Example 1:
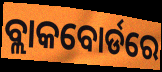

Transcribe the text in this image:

ବ୍ଲାକବୋର୍ଡରେ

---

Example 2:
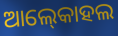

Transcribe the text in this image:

ଆଲ୍‍କୋହଲ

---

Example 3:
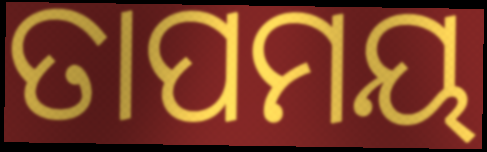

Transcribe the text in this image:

ତାପମୟ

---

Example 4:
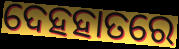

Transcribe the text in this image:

ଦେହହାତରେ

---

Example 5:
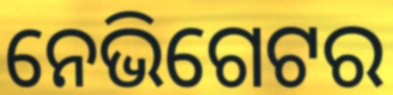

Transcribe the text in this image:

ନେଭିଗେଟର